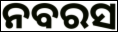
ନବରସ